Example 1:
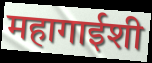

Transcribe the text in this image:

महागाईशी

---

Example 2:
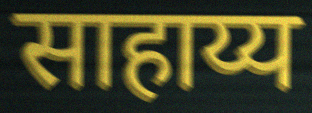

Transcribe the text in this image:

साहाय्य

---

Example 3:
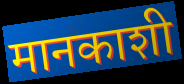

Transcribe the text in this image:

मानकाशी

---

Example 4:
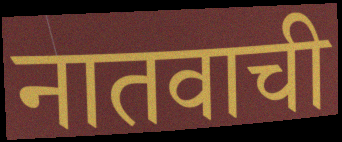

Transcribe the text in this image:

नातवाची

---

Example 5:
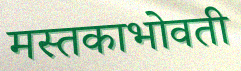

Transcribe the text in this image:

मस्तकाभोवती